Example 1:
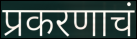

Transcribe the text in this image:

प्रकरणाचं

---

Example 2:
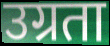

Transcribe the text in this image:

उग्रता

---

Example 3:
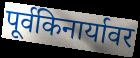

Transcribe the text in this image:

पूर्वकिनार्यावर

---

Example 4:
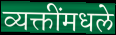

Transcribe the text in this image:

व्यक्तींमधले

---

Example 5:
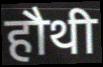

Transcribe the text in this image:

हौथी